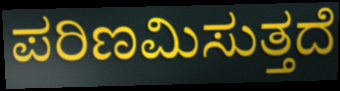
ಪರಿಣಮಿಸುತ್ತದೆ